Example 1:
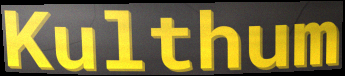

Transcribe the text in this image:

Kulthum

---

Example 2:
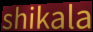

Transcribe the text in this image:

shikala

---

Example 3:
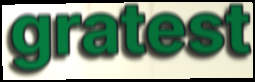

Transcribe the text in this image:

gratest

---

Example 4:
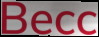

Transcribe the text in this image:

Becc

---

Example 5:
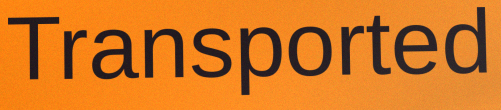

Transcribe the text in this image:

Transported